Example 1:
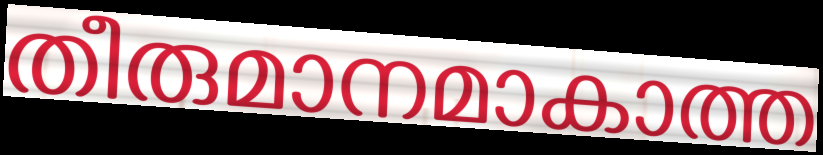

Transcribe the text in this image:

തീരുമാനമാകാത്ത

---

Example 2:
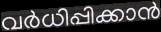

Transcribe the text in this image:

വർധിപ്പിക്കാൻ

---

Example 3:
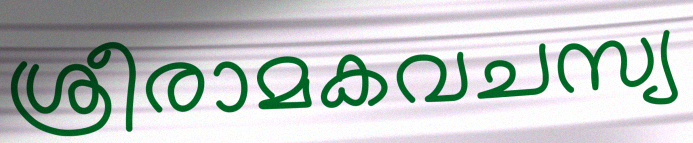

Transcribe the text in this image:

ശ്രീരാമകവചസ്യ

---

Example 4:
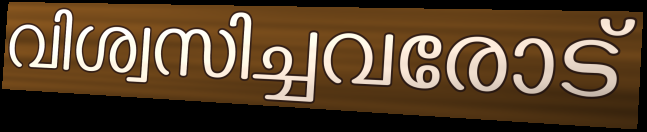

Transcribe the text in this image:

വിശ്വസിച്ചവരോട്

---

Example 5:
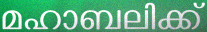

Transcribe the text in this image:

മഹാബലിക്ക്